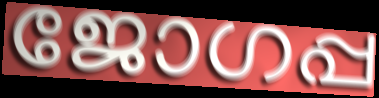
ജോഗപ്പ